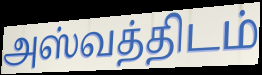
அஸ்வத்திடம்